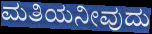
ಮತಿಯನೀವುದು